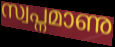
സ്വപ്നമാണു